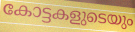
കോട്ടകളുടെയും